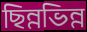
ছিন্নভিন্ন